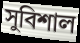
সুবিশাল